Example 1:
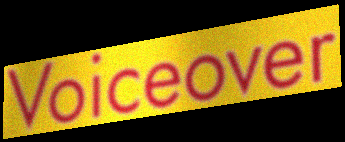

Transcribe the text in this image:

Voiceover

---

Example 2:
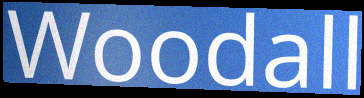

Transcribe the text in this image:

Woodall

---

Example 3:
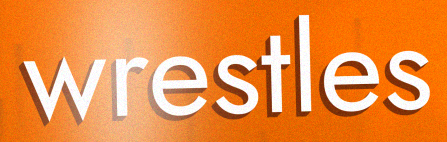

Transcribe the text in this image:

wrestles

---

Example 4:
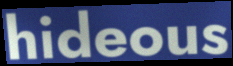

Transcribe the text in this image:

hideous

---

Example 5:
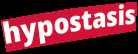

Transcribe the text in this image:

hypostasis